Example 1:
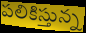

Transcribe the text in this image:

పలికిస్తున్న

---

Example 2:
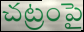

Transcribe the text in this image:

చట్రంపై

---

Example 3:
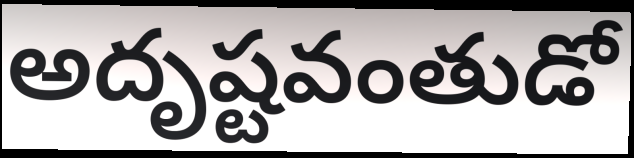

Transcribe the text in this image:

అదృష్టవంతుడో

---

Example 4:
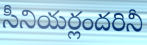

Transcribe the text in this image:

సీనియర్లందరినీ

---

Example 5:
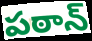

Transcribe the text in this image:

పఠాన్